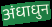
अंधाधुन